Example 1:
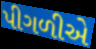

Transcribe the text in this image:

પીગળીએ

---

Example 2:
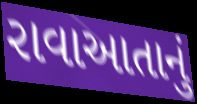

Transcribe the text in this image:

રાવાઆતાનું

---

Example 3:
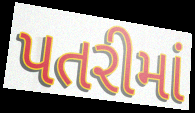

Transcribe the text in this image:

પતરીમાં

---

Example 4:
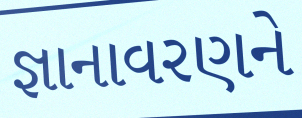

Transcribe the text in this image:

જ્ઞાનાવરણને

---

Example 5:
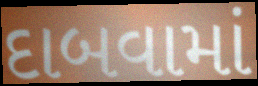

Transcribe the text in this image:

દાબવામાં